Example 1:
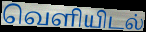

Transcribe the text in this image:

வெளியிடல்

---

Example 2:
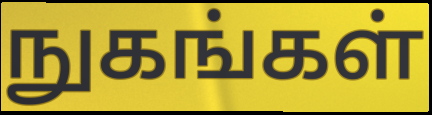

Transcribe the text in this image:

நுகங்கள்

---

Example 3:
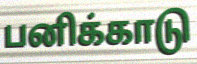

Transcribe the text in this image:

பனிக்காடு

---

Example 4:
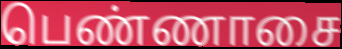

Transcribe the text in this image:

பெண்ணாசை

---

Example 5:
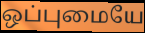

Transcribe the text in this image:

ஒப்புமையே